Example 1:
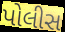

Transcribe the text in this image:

પોલીસ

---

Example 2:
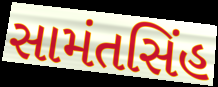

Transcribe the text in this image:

સામંતસિંહ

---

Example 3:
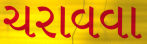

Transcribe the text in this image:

ચરાવવા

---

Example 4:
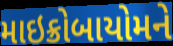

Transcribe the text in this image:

માઇક્રોબાયોમને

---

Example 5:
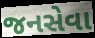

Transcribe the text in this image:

જનસેવા